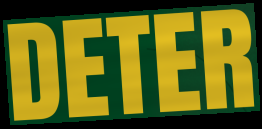
DETER